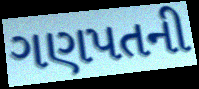
ગણપતની